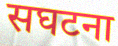
सघटना